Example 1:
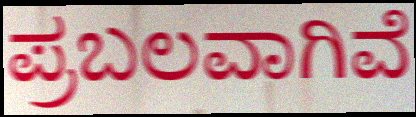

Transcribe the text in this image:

ಪ್ರಬಲವಾಗಿವೆ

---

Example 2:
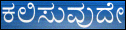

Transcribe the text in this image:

ಕಲಿಸುವುದೇ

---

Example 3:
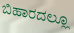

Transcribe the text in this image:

ಬಿಹಾರದಲ್ಲೂ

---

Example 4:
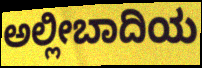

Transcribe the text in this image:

ಅಲ್ಲೀಬಾದಿಯ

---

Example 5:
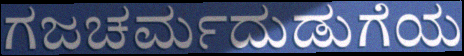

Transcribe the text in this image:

ಗಜಚರ್ಮದುಡುಗೆಯ